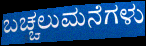
ಬಚ್ಚಲುಮನೆಗಳು